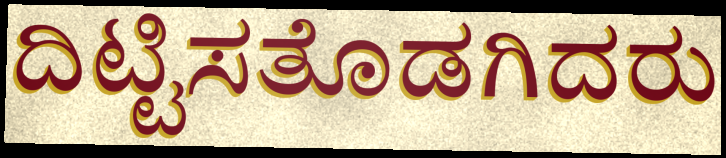
ದಿಟ್ಟಿಸತೊಡಗಿದರು